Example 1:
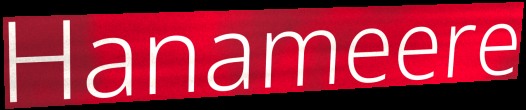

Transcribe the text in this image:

Hanameere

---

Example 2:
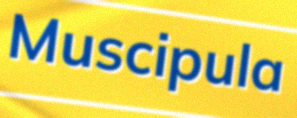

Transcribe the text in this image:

Muscipula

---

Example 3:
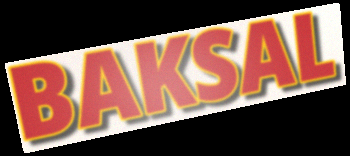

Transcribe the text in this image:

BAKSAL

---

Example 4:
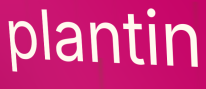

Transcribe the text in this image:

plantin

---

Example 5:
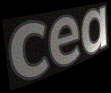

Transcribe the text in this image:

cea